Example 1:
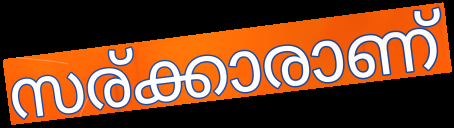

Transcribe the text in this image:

സര്ക്കാരാണ്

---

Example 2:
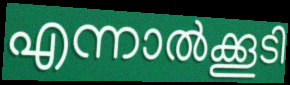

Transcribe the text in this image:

എന്നാൽക്കൂടി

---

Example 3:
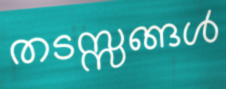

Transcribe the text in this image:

തടസ്സങ്ങൾ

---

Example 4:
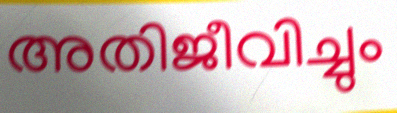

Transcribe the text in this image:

അതിജീവിച്ചും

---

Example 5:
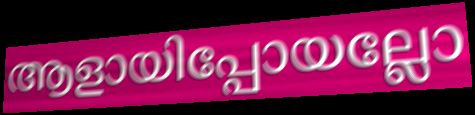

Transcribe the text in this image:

ആളായിപ്പോയല്ലോ